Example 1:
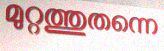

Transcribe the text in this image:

മുറ്റത്തുതന്നെ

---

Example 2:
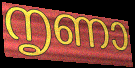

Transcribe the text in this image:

നൃണാ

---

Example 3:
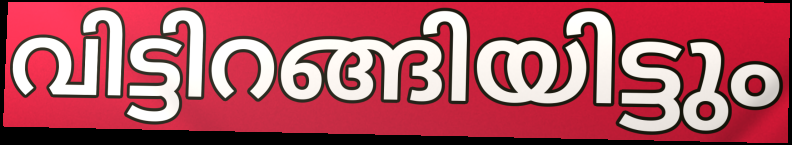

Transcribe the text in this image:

വിട്ടിറങ്ങിയിട്ടും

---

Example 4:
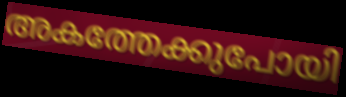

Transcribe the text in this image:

അകത്തേക്കുപോയി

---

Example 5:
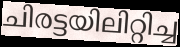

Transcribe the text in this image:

ചിരട്ടയിലിറ്റിച്ച